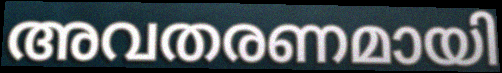
അവതരണമായി